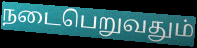
நடைபெறுவதும்